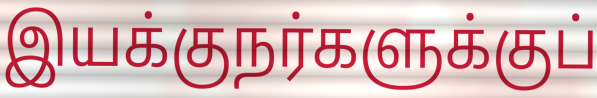
இயக்குநர்களுக்குப்